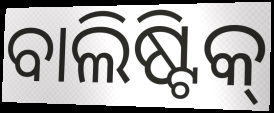
ବାଲିଷ୍ଟିକ୍